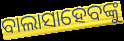
ବାଲାସାହେବଙ୍କୁ